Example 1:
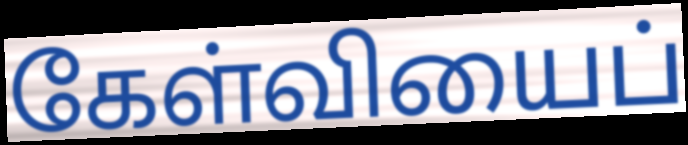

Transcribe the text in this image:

கேள்வியைப்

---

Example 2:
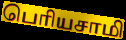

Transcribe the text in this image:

பெரியசாமி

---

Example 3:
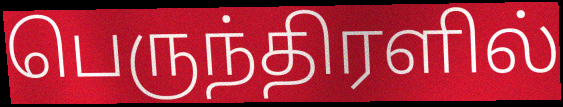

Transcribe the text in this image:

பெருந்திரளில்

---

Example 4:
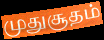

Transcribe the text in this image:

முதுசூதம்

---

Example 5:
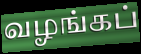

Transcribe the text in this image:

வழங்கப்